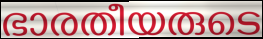
ഭാരതീയരുടെ